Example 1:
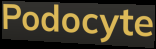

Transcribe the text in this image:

Podocyte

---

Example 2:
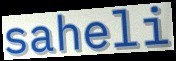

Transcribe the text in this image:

saheli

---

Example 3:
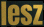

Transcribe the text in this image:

lesz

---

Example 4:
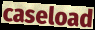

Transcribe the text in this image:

caseload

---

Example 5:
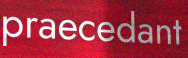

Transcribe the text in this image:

praecedant